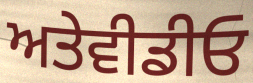
ਅਤੇਵੀਡੀਓ